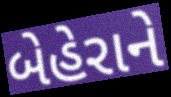
બેહેરાને